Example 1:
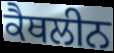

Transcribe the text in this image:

ਕੈਥਲੀਨ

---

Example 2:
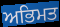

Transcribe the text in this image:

ਅਭਿਮਤ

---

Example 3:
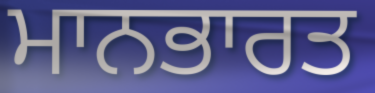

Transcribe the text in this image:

ਮਾਨਭਾਰਤ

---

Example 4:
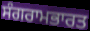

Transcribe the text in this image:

ਸੰਗਰਾਮਭਾਰਤ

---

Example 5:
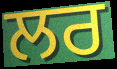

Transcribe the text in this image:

ਲਰ